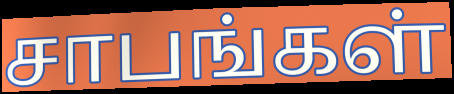
சாபங்கள்